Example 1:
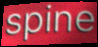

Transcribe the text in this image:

spine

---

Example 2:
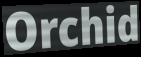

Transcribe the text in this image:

Orchid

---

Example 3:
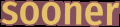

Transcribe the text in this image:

sooner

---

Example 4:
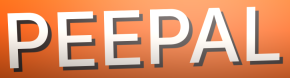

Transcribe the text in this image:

PEEPAL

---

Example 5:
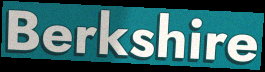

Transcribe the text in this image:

Berkshire